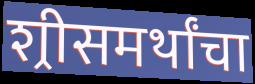
श्रीसमर्थांचा